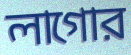
লাগোর